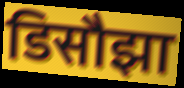
डिसौझा